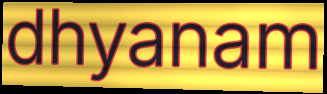
dhyanam